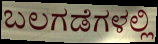
ಬಲಗಡೆಗಳಲ್ಲಿ